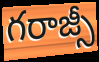
గరాజ్సీ